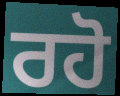
ਰਹੋ